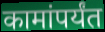
कामांपर्यंत